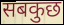
सबकुछ